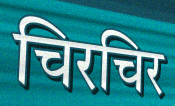
चिरचिर